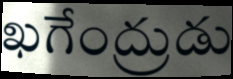
ఖగేంద్రుడు